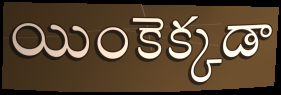
యింకెక్కడా